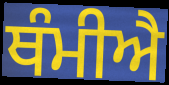
ਥੰਮੀਐ